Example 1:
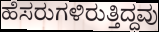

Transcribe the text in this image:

ಹೆಸರುಗಳಿರುತ್ತಿದ್ದವು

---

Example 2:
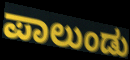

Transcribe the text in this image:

ಪಾಲುಂಡು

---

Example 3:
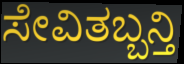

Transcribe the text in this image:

ಸೇವಿತಬ್ಬನ್ತಿ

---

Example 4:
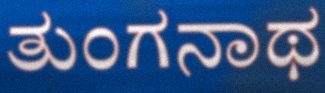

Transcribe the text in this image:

ತುಂಗನಾಥ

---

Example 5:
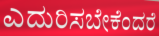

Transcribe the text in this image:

ಎದುರಿಸಬೇಕೆಂದರೆ